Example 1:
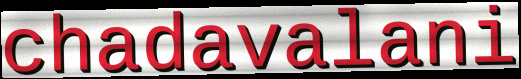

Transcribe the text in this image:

chadavalani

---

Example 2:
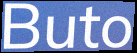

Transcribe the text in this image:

Buto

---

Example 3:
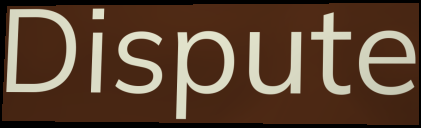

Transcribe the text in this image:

Dispute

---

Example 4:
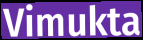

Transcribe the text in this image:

Vimukta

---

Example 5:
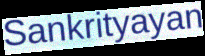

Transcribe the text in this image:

Sankrityayan